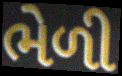
ભેળી